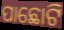
ପାଛୋଟି